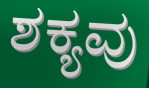
ಶಕ್ಯವು